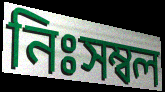
নিঃসম্বল